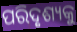
ପରିଦୃଶ୍ୟକୁ